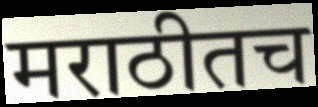
मराठीतच